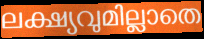
ലക്ഷ്യവുമില്ലാതെ